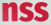
nss